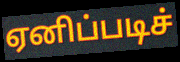
ஏனிப்படிச்